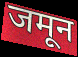
जमून